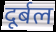
दूर्बल